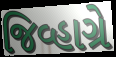
જિવ્હાગ્રે